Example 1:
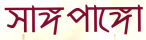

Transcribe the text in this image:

সাঙ্গপাঙ্গো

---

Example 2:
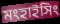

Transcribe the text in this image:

মংহাইসিং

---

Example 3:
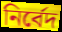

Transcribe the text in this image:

নির্বেদ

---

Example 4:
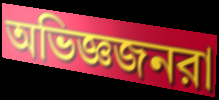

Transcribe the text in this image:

অভিজ্ঞজনরা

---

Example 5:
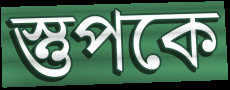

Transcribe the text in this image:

স্তুপকে